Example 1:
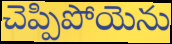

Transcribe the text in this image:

చెప్పిపోయెను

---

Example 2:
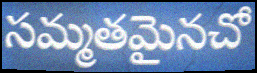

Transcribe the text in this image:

సమ్మతమైనచో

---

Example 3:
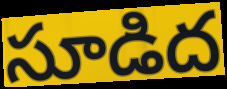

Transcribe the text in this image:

సూడిద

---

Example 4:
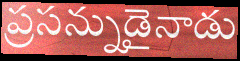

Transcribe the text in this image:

ప్రసన్నుడైనాడు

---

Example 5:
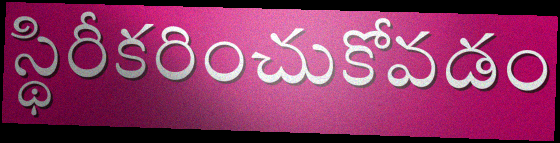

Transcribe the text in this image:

స్థిరీకరించుకోవడం